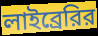
লাইব্রেরির